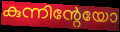
കുന്നിന്റേയോ